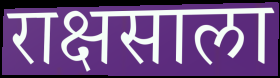
राक्षसाला